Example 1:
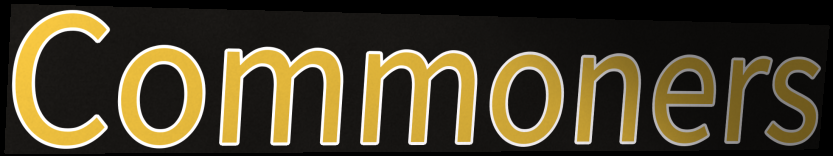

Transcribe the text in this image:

Commoners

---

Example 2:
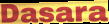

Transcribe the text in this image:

Dasara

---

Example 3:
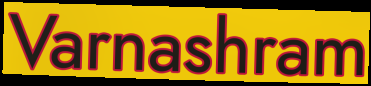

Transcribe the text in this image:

Varnashram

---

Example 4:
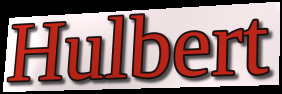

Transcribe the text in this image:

Hulbert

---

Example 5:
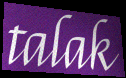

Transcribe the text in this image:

talak